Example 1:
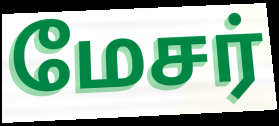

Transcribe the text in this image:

மேசர்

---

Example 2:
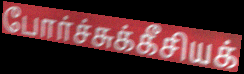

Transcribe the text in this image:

போர்ச்சுக்கீசியக்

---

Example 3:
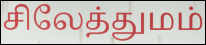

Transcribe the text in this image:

சிலேத்துமம்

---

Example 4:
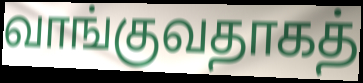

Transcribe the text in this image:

வாங்குவதாகத்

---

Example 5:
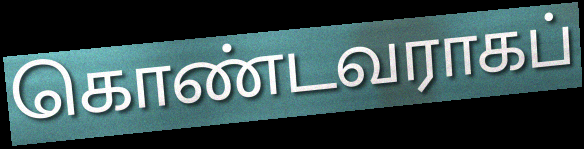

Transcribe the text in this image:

கொண்டவராகப்